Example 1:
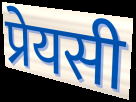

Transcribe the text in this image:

प्रेयसी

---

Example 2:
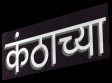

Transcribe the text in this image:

कंठाच्या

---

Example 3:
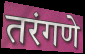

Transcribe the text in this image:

तरंगणे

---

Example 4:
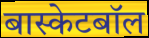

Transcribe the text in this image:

बास्केटबॉल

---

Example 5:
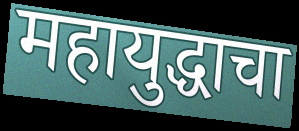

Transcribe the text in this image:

महायुद्धाचा